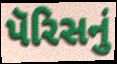
પૅરિસનું